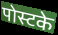
पोस्टके